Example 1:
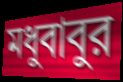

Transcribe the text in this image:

মধুবাবুর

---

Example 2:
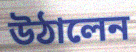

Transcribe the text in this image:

উঠালেন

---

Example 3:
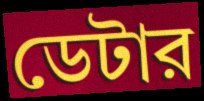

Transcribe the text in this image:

ডেটার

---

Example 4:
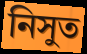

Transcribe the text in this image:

নিসুত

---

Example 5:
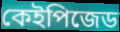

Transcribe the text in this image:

কেইপিজেড